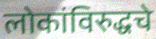
लोकांविरुद्धचे